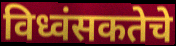
विध्वंसकतेचे